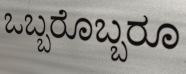
ಒಬ್ಬರೊಬ್ಬರೂ